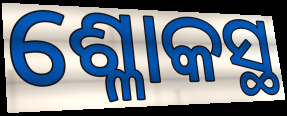
ଶ୍ଳୋକସ୍ଥ